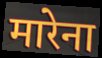
मारेना